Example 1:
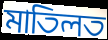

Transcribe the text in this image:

মাতিলত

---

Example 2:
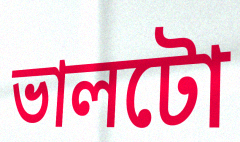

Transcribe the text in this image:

ভালটো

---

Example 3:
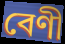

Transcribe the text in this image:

বেণী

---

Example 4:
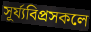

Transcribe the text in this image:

সূৰ্য্যবিপ্ৰসকলে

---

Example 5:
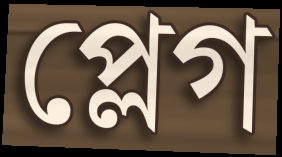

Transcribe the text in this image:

প্লেগ